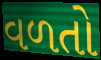
વળતો